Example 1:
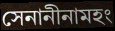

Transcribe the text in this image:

সেনানীনামহং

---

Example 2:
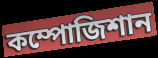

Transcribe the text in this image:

কম্পোজিশান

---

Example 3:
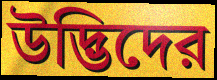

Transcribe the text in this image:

উদ্ভিদের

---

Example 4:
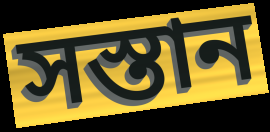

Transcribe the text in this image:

সস্তান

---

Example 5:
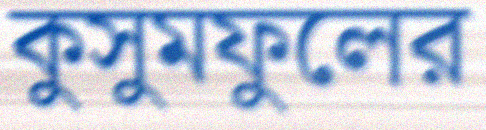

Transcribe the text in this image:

কুসুমফুলের